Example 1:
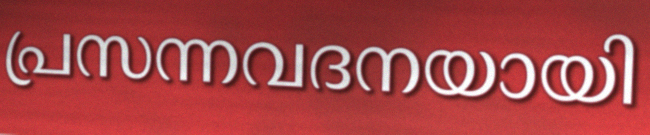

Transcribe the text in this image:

പ്രസന്നവദനയായി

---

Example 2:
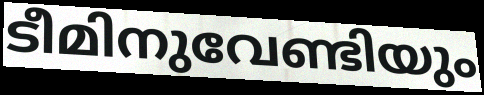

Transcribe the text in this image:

ടീമിനുവേണ്ടിയും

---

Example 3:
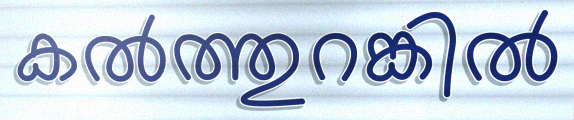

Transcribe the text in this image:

കൽത്തുറങ്കിൽ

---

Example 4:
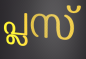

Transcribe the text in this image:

പ്ലസ്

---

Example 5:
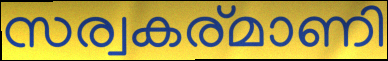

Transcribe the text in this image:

സര്വകര്മാണി